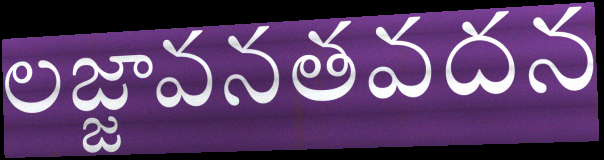
లజ్జావనతవదన